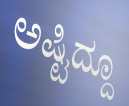
ಅಷ್ಟಿದ್ದೂ